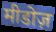
मीडोज़